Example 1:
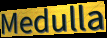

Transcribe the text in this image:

Medulla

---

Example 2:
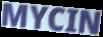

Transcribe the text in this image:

MYCIN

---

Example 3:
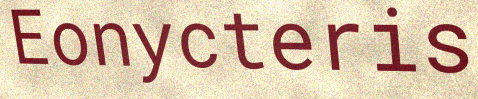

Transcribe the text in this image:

Eonycteris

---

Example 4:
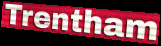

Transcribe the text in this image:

Trentham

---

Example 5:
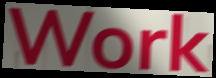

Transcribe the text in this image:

Work